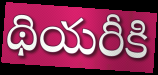
థియరీకి